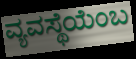
ವ್ಯವಸ್ಥೆಯೆಂಬ